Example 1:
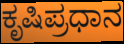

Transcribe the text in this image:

ಕೃಷಿಪ್ರಧಾನ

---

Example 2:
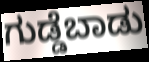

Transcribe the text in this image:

ಗುಡ್ಡೆಬಾಡು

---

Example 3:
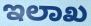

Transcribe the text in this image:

ಇಲಾಖ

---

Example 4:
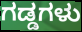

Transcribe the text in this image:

ಗಡ್ಡಗಳು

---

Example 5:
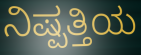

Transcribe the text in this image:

ನಿಷ್ಪತ್ತಿಯ